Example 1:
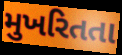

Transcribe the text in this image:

મુખરિતતા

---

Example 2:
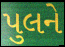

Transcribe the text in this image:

પુલને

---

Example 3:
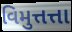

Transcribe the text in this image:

વિમુત્તત્તા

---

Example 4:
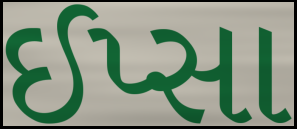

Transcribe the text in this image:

ઈપ્સા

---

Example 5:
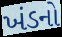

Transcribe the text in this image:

ખંડનો